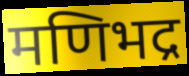
मणिभद्र